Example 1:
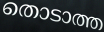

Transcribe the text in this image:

തൊടാത്ത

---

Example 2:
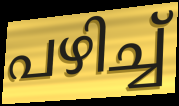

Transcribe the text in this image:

പഴിച്ച്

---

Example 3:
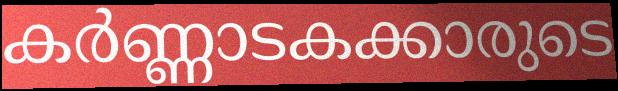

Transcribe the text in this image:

കർണ്ണാടകക്കാരുടെ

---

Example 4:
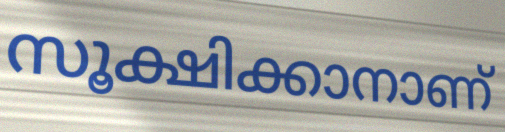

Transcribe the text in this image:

സൂക്ഷിക്കാനാണ്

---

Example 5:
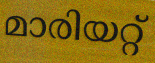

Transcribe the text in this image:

മാരിയറ്റ്